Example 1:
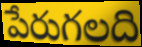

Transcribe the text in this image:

పేరుగలది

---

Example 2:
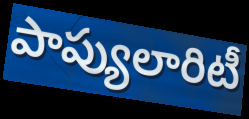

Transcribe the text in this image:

పాప్యులారిటీ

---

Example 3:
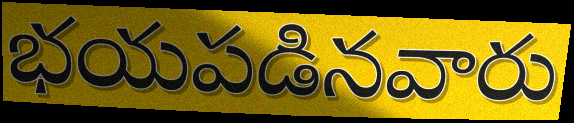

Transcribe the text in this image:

భయపడినవారు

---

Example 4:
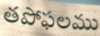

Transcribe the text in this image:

తపోఫలము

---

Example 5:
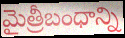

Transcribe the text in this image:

మైత్రీబంధాన్ని